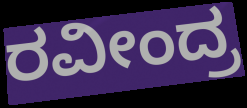
ರವೀಂದ್ರ